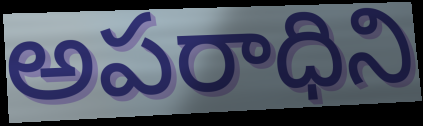
అపరాధిని